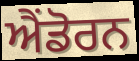
ਐਂਡੋਰਨ